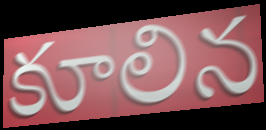
కూలిన